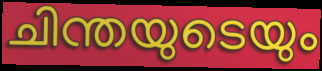
ചിന്തയുടെയും